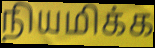
நியமிக்க